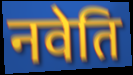
नवेति